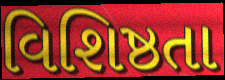
વિશિષ્ઠતા